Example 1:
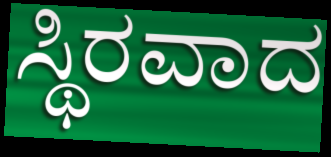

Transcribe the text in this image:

ಸ್ಥಿರವಾದ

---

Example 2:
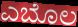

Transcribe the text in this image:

ಎಬೊಲ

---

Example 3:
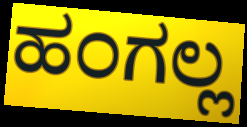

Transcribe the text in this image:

ಹಂಗಲ್ಲ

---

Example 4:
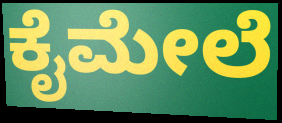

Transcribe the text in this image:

ಕೈಮೇಲೆ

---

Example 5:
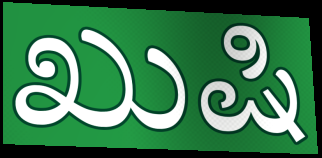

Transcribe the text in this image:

ಖುಷಿ